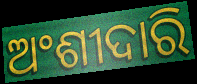
ଅଂଶୀଦାରି